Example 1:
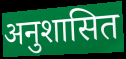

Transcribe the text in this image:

अनुशासित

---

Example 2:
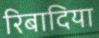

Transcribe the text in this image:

रिबादिया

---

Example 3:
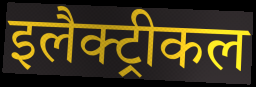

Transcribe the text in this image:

इलैक्ट्रीकल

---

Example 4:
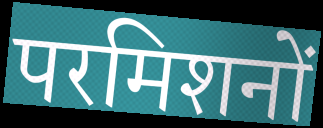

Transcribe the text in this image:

परमिशनों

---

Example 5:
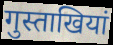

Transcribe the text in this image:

गुस्ताखियां